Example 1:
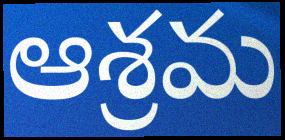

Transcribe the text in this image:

ఆశ్రమ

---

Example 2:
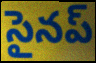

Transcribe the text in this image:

సైనప్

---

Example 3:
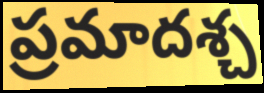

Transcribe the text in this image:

ప్రమాదశ్చ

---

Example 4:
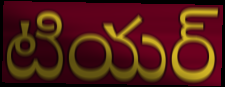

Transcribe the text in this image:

టియర్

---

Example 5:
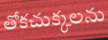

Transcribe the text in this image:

తోకచుక్కలను